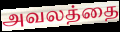
அவலத்தை